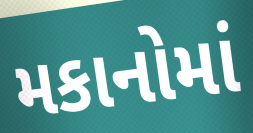
મકાનોમાં